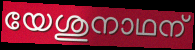
യേശുനാഥന്